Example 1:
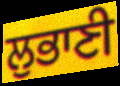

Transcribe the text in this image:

ਲੁਭਾਣੀ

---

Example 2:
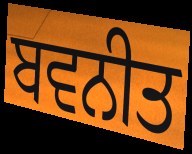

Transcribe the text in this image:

ਬਵਨੀਤ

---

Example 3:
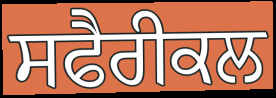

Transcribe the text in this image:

ਸਫੈਰੀਕਲ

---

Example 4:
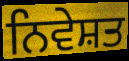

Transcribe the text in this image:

ਨਿਵੇਸ਼ਤ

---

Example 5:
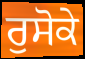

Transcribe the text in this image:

ਰੁਸੋਕੇ